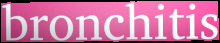
bronchitis